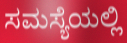
ಸಮಸ್ಯೆಯಲ್ಲಿ